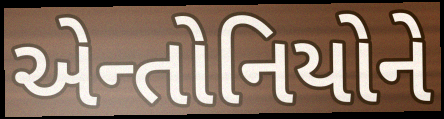
એન્તોનિયોને